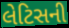
લેટિસની